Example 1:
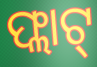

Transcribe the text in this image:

ଫ୍ଲାଟ୍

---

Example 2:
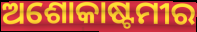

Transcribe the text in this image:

ଅଶୋକାଷ୍ଟମୀର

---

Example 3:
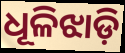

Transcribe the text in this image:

ଧୂଳିଝାଡ଼ି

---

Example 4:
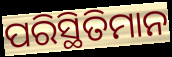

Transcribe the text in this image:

ପରିସ୍ଥିତିମାନ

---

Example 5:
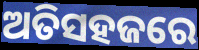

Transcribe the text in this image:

ଅତିସହଜରେ